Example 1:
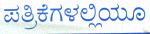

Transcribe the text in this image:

ಪತ್ರಿಕೆಗಳಲ್ಲಿಯೂ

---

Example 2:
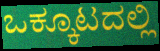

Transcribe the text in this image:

ಒಕ್ಕೂಟದಲ್ಲಿ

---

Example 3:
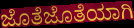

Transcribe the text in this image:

ಜೊತೆಜೊತೆಯಾಗಿ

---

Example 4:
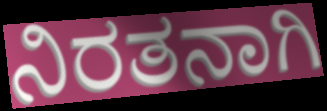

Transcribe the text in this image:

ನಿರತನಾಗಿ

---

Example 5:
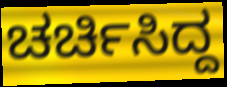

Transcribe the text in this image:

ಚರ್ಚಿಸಿದ್ದ